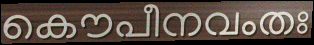
കൌപീനവംതഃ